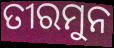
ତୀରମୁନ